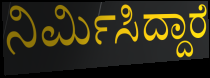
ನಿರ್ಮಿಸಿದ್ದಾರೆ